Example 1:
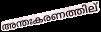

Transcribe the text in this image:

അന്തഃകരണത്തില്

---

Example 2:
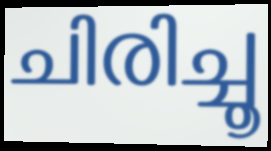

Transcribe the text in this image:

ചിരിച്ചൂ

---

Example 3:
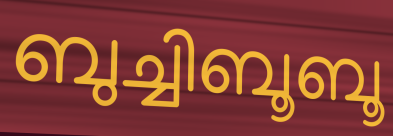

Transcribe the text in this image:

ബുച്ചിബൂബൂ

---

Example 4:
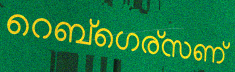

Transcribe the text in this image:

റെബ്ഗെര്സണ്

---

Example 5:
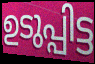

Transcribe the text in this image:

ഉടുപ്പിട്ട